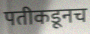
पतीकडूनच